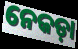
ନେକଡ଼ା